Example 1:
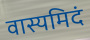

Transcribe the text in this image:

वास्यमिदं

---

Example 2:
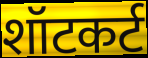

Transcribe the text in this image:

शॉटकर्ट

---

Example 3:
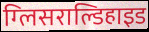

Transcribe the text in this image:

ग्लिसराल्डिहाइड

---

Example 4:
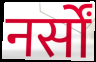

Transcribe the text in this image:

नर्सों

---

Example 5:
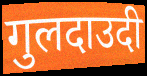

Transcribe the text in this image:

गुलदाउदी